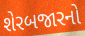
શેરબજારનો